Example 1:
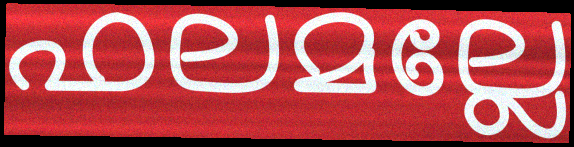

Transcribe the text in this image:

ഫലമല്ലേ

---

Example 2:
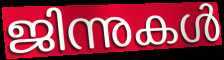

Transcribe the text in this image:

ജിന്നുകൾ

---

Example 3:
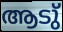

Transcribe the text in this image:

ആടു്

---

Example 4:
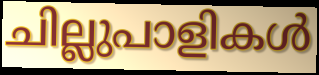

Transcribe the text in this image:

ചില്ലുപാളികൾ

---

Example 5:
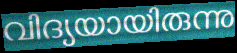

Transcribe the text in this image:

വിദ്യയായിരുന്നു